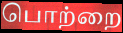
பொற்றை